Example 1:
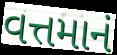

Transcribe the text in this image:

વત્તમાનં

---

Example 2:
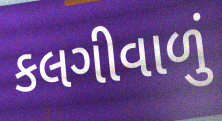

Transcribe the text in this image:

કલગીવાળું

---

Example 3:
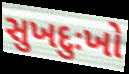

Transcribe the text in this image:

સુખદુઃખો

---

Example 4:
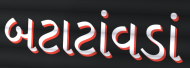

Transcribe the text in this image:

બટાટાંવડાં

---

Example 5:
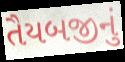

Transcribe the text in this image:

તૈયબજીનું